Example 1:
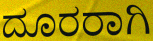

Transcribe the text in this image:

ದೂರರಾಗಿ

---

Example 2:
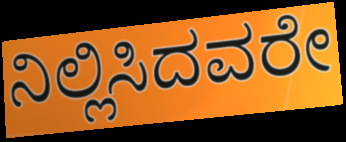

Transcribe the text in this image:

ನಿಲ್ಲಿಸಿದವರೇ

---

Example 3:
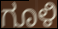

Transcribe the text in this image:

ಗೂಳಿ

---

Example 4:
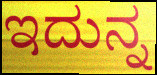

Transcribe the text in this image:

ಇದುನ್ನ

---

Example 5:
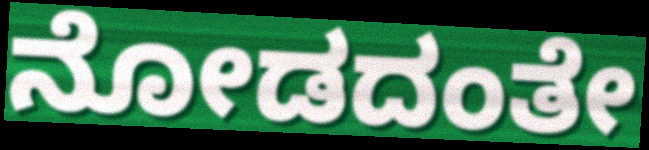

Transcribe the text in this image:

ನೋಡದಂತೇ